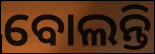
ବୋଲନ୍ତି